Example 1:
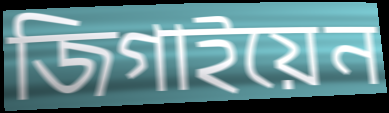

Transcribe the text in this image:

জিগাইয়েন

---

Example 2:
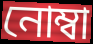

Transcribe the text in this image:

নোম্বা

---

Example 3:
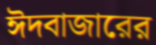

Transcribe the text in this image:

ঈদবাজারের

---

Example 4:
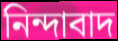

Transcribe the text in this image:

নিন্দাবাদ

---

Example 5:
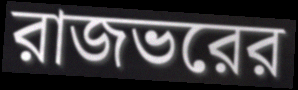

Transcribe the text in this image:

রাজভরের